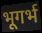
भूगर्भ